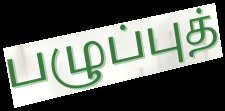
பழுப்புத்